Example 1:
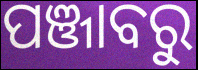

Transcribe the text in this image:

ପଞ୍ଜାବରୁ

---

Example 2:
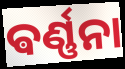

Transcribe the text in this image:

ଵର୍ଣ୍ଣନା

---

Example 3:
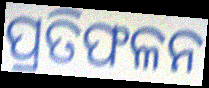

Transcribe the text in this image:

ପ୍ରତିଫଳନ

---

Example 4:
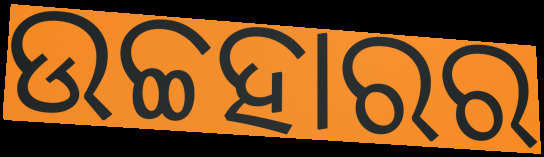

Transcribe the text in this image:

ଉଚ୍ଚହାରର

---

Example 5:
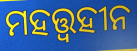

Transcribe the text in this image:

ମହତ୍ତ୍ବହୀନ